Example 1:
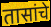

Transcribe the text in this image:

तासांचे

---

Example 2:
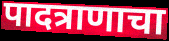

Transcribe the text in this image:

पादत्राणाचा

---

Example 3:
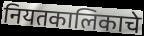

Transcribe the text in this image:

नियतकालिकाचे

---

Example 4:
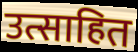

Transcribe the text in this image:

उत्साहित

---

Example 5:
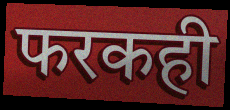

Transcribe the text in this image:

फरकही